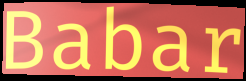
Babar